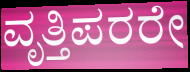
ವೃತ್ತಿಪರರೇ